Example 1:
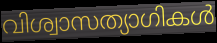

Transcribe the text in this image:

വിശ്വാസത്യാഗികൾ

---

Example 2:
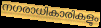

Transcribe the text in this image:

നഗരാധികാരികളും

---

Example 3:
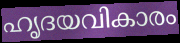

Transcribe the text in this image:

ഹൃദയവികാരം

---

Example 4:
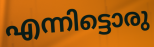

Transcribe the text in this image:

എന്നിട്ടൊരു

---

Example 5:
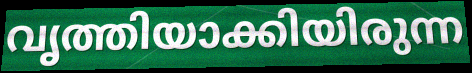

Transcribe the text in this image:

വൃത്തിയാക്കിയിരുന്ന